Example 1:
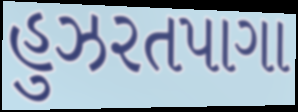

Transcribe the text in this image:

હુઝરતપાગા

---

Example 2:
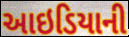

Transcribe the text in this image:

આઇડિયાની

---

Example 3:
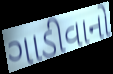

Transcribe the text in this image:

ગાડીવાનો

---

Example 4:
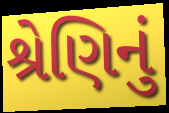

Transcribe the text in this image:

શ્રેણિનું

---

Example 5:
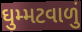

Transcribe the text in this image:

ઘુમ્મટવાળું